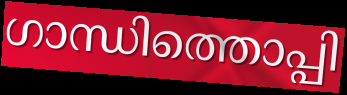
ഗാന്ധിത്തൊപ്പി